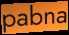
pabna